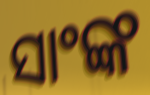
ସାଂଙ୍କ